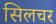
सिलचर